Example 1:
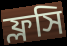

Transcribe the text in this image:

ফ্লসি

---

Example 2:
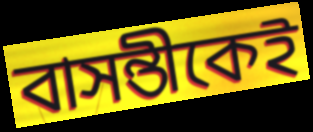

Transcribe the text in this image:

বাসন্তীকেই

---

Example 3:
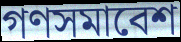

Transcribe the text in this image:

গণসমাবেশ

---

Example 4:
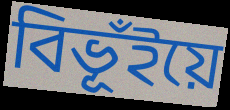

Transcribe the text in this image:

বিভূঁইয়ে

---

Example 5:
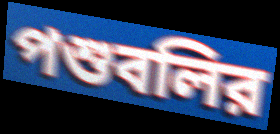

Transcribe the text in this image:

পশুবলির